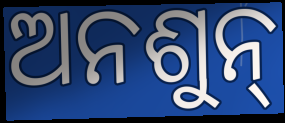
ଅନଶୁନ୍